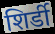
शिर्डी